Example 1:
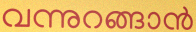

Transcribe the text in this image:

വന്നുറങ്ങാൻ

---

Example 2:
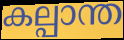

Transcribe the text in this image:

കല്പാന്ത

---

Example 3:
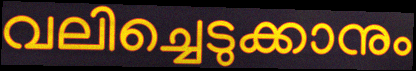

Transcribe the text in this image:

വലിച്ചെടുക്കാനും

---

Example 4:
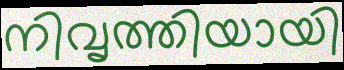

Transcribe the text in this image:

നിവൃത്തിയായി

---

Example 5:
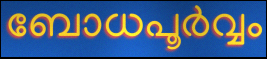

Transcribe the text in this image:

ബോധപൂർവ്വം